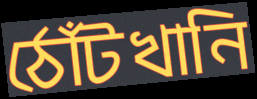
ঠোঁটখানি